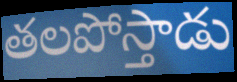
తలపోస్తాడు